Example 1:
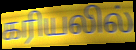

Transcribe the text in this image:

கரியலில்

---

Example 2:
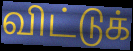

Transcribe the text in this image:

விட்டுக்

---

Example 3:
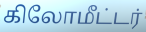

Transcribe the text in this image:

கிலோமீட்டர்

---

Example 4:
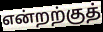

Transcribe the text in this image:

என்றற்குத்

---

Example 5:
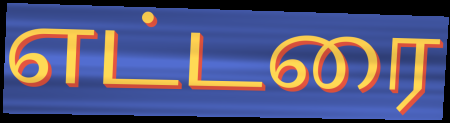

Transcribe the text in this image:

எட்டரை